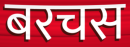
बरचस